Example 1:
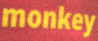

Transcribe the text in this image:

monkey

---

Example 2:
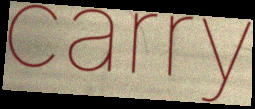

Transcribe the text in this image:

carry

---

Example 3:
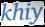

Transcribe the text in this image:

khiy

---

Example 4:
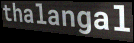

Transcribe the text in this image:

thalangal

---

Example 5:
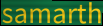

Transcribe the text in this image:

samarth